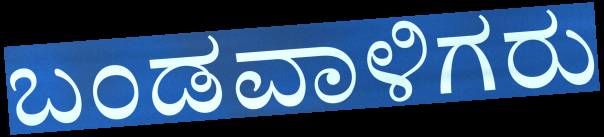
ಬಂಡವಾಳಿಗರು